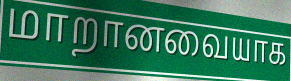
மாறானவையாக